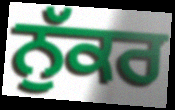
ਨੁੱਕਰ